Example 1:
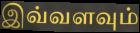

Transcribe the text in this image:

இவ்வளவும்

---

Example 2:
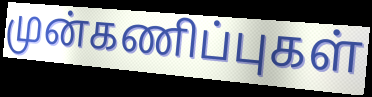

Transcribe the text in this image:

முன்கணிப்புகள்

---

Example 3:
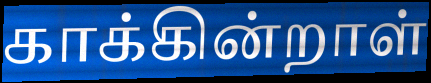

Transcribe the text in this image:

காக்கின்றாள்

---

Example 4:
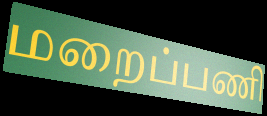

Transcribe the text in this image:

மறைப்பணி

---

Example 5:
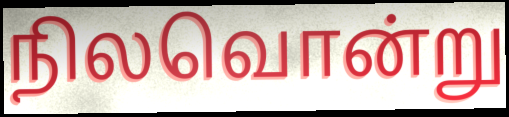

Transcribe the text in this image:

நிலவொன்று